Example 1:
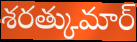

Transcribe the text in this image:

శరత్కుమార్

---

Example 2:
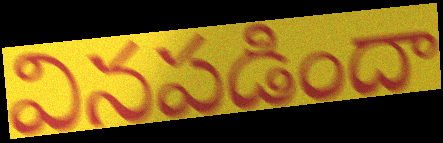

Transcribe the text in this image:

వినపడిందా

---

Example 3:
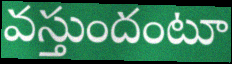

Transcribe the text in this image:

వస్తుందంటూ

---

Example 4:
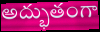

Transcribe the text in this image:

అద్భుతంగా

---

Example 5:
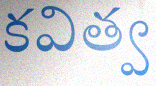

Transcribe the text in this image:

కవిత్వ